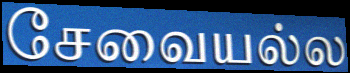
சேவையல்ல